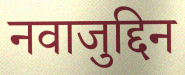
नवाजुद्दिन